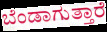
ಬೆಂಡಾಗುತ್ತಾರೆ